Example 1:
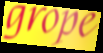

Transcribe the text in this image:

grope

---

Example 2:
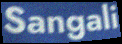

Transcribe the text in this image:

Sangali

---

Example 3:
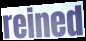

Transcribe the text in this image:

reined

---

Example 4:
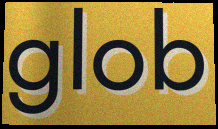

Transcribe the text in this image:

glob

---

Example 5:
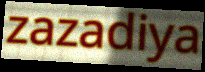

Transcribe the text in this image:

zazadiya